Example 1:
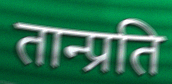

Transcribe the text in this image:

तान्प्रति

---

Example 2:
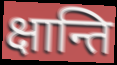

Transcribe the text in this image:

क्षान्ति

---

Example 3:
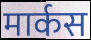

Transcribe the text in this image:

मार्कस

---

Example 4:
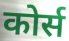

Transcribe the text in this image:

कोर्स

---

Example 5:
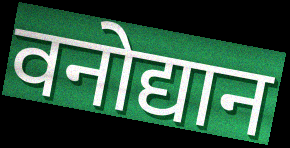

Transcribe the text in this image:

वनोद्यान